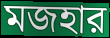
মজহার